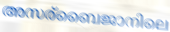
അസര്ബൈജാനിലെ